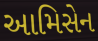
આમિસેન